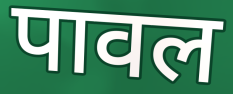
पावल